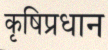
कृषिप्रधान